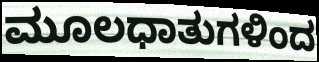
ಮೂಲಧಾತುಗಳಿಂದ